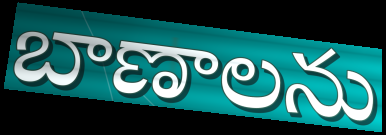
బాణాలను